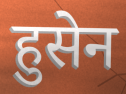
हुसेन